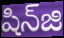
షిన్‌జి